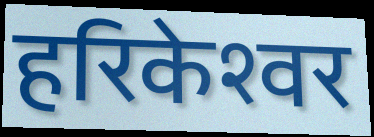
हरिकेश्वर